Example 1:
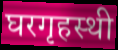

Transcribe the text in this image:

घरगृहस्थी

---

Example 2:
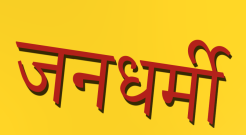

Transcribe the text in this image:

जनधर्मी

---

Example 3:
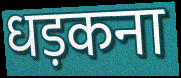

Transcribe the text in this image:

धड़कना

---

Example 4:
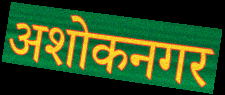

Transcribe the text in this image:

अशोकनगर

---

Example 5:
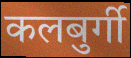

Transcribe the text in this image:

कलबुर्गी